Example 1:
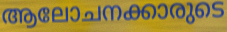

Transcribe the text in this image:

ആലോചനക്കാരുടെ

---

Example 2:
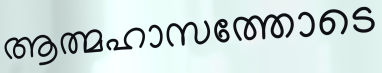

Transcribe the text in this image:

ആത്മഹാസത്തോടെ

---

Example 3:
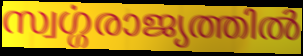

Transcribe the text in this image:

സ്വൎഗ്ഗരാജ്യത്തിൽ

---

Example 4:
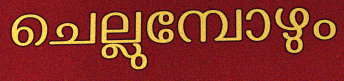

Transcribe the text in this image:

ചെല്ലുമ്പോഴും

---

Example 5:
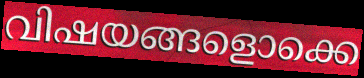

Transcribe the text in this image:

വിഷയങ്ങളൊക്കെ